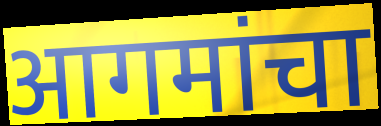
आगमांचा